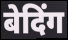
बेदिंग